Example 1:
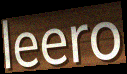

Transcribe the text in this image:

leero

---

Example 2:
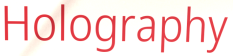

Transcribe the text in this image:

Holography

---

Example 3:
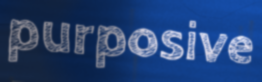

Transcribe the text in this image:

purposive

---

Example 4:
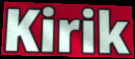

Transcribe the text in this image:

Kirik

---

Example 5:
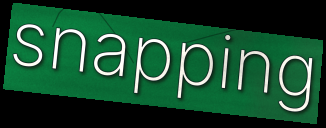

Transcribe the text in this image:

snapping